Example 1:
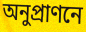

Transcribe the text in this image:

অনুপ্রাণনে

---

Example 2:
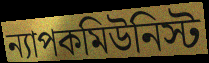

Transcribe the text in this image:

ন্যাপকমিউনিস্ট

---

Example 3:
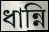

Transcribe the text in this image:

ধান্নি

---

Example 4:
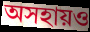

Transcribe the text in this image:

অসহায়ও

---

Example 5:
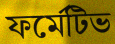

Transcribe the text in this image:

ফর্মেটিভ